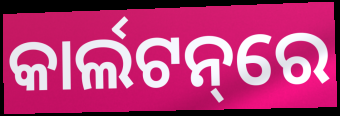
କାର୍ଲଟନ୍‌ରେ